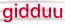
gidduu